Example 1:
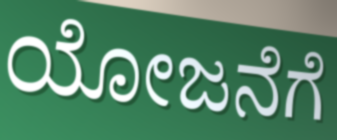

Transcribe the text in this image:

ಯೋಜನೆಗೆ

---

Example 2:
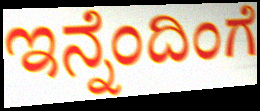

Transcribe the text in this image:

ಇನ್ನೆಂದಿಂಗೆ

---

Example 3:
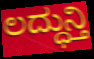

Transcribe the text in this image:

ಲದ್ಧುನ್ತಿ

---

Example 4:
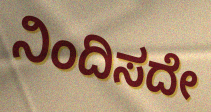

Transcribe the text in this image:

ನಿಂದಿಸದೇ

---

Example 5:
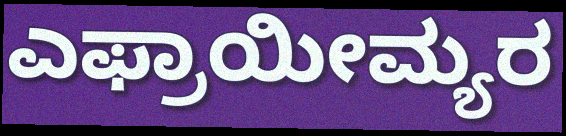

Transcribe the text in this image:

ಎಫ್ರಾಯೀಮ್ಯರ